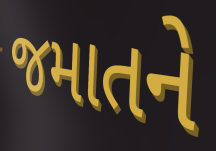
જમાતને